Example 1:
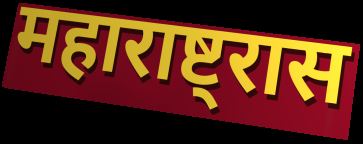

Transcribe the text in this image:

महाराष्ट्रास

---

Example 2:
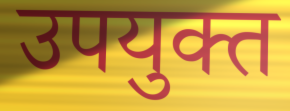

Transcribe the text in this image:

उपयुक्त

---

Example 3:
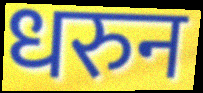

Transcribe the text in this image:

धरुन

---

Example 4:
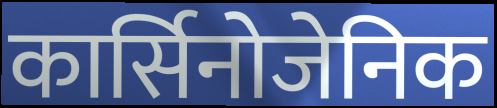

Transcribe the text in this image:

कार्सिनोजेनिक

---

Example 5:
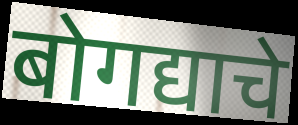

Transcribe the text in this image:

बोगद्याचे